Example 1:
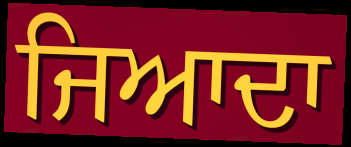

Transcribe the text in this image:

ਜਿਆਦਾ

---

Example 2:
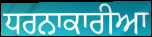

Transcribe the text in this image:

ਧਰਨਾਕਾਰੀਆ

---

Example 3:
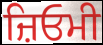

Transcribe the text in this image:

ਜ਼ਿਓਮੀ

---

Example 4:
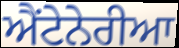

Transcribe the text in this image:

ਐਂਟੇਨੇਰੀਆ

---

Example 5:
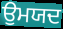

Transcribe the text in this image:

ਉਮਯਦ